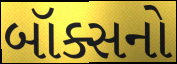
બૉક્સનો